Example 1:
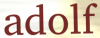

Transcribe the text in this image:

adolf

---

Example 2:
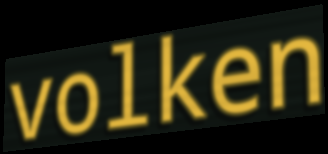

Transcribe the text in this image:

volken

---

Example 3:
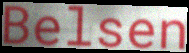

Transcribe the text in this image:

Belsen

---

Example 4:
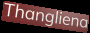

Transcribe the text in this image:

Thangliena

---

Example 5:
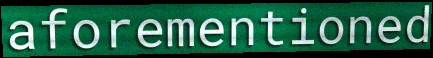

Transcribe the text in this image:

aforementioned